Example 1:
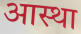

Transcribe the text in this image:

आस्‍था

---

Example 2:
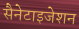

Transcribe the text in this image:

सैनेटाइजेशन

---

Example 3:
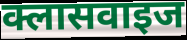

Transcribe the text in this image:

क्लासवाइज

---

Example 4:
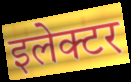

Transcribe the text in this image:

इलेक्टर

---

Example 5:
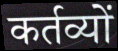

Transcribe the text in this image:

कर्तव्यों